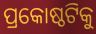
ପ୍ରକୋଷ୍ଠଟିକୁ